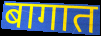
बागात